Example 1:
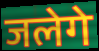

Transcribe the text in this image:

जलेगे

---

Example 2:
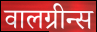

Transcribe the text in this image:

वालग्रीन्स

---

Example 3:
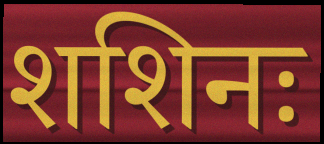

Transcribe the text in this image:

शशिनः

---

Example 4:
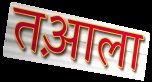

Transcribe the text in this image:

तआ़ला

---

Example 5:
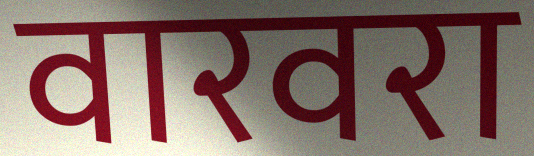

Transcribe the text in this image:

वारवरा